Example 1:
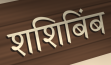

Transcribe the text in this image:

शशिबिंब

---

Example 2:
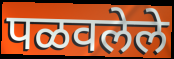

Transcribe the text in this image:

पळवलेले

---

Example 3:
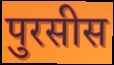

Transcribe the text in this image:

पुरसीस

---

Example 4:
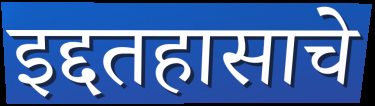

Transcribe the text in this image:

इद्दतहासाचे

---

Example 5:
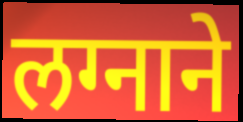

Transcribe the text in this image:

लग्नाने